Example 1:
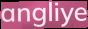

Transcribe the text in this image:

angliye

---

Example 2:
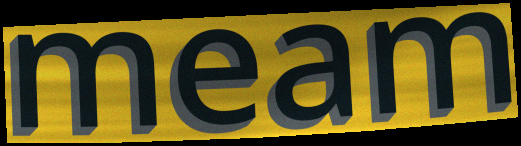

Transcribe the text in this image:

meam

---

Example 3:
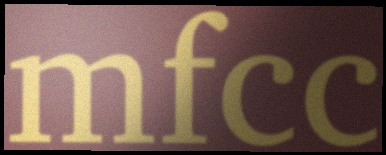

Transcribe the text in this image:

mfcc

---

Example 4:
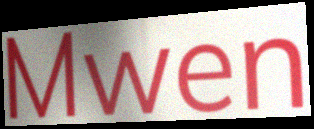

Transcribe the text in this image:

Mwen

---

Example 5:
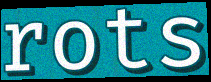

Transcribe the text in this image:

rots